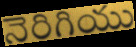
నెరిగియు